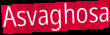
Asvaghosa